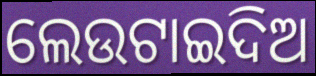
ଲେଉଟାଇଦିଅ